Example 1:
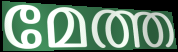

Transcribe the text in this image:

മേത്ത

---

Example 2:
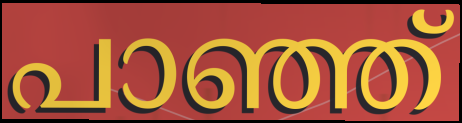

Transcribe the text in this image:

പാഞ്ഞ്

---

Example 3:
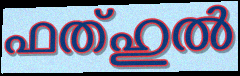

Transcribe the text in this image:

ഫത്ഹുൽ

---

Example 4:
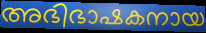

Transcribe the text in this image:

അഭിഭാഷകനായ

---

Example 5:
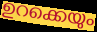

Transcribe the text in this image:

ഉറക്കെയും